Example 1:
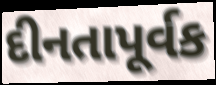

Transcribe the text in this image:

દીનતાપૂર્વક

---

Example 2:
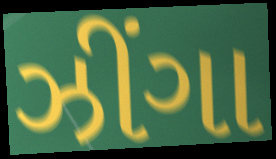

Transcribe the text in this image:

ઝીંગા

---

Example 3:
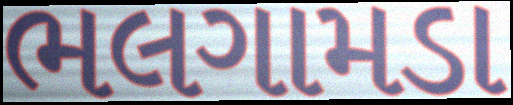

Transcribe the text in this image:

ભલગામડા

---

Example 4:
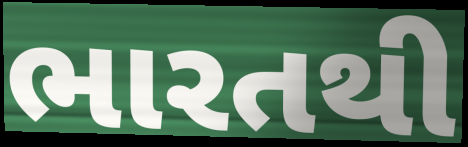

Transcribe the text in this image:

ભારતથી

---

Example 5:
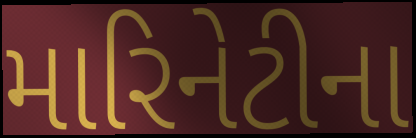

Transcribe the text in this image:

મારિનેટીના